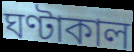
ঘণ্টাকাল